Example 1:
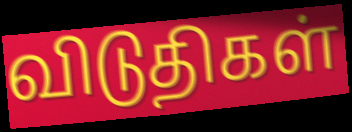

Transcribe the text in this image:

விடுதிகள்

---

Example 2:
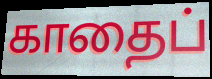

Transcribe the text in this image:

காதைப்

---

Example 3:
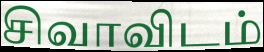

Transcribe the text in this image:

சிவாவிடம்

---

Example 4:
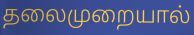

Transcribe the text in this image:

தலைமுறையால்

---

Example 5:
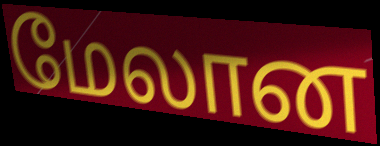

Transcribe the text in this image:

மேலான